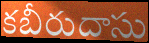
కబీరుదాసు